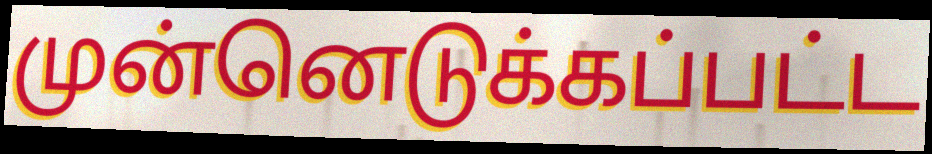
முன்னெடுக்கப்பட்ட